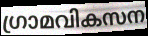
ഗ്രാമവികസന